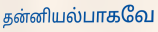
தன்னியல்பாகவே